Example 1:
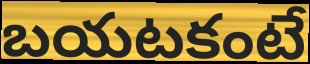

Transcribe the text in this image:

బయటకంటే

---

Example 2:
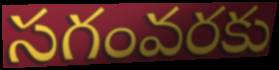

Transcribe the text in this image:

సగంవరకు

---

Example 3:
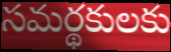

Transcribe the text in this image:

సమర్థకులకు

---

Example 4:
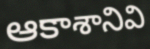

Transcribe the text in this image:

ఆకాశానివి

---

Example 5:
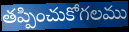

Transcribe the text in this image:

తప్పించుకోగలము